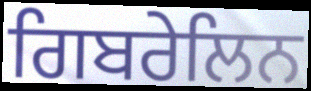
ਗਿਬਰੇਲਿਨ